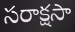
సరాక్షసా